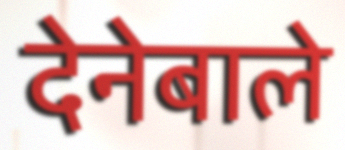
देनेबाले